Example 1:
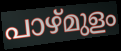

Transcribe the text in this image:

പാഴ്മുളം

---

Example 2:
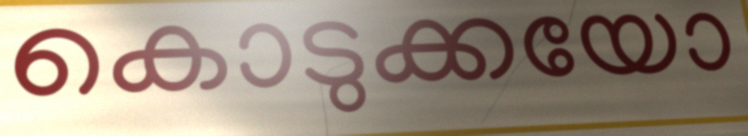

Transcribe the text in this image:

കൊടുക്കയോ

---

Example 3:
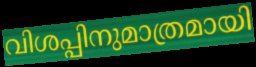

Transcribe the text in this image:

വിശപ്പിനുമാത്രമായി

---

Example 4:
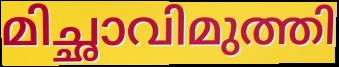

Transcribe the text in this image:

മിച്ഛാവിമുത്തി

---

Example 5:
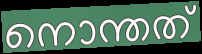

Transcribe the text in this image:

നൊന്തത്